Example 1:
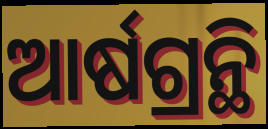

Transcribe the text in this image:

ଆର୍ଷଗ୍ରନ୍ଥି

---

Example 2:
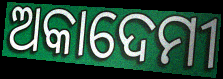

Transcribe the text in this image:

ଅକାଦେମୀ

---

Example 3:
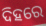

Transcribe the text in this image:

ଦିହରେ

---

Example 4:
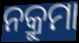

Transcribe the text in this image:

ନକ୍ରୁମା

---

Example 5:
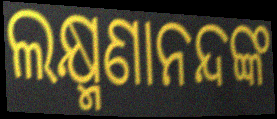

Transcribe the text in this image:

ଲକ୍ଷ୍ମଣାନନ୍ଦଙ୍କ